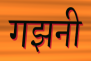
गझनी